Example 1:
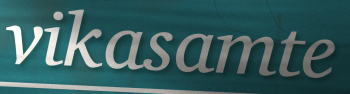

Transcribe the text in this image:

vikasamte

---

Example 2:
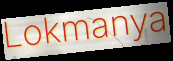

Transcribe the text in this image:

Lokmanya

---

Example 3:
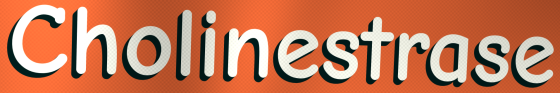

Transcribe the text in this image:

Cholinestrase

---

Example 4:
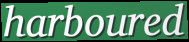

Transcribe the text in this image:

harboured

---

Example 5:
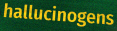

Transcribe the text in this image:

hallucinogens